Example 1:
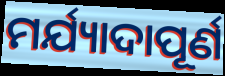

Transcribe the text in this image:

ମର୍ଯ୍ୟାଦାପୂର୍ଣ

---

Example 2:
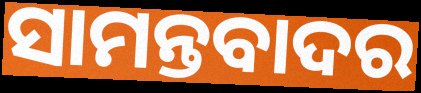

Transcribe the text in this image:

ସାମନ୍ତବାଦର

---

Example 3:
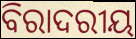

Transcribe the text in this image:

ବିରାଦରୀୟ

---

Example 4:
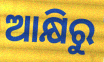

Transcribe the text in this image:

ଆକ୍ଷିରୁ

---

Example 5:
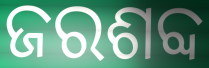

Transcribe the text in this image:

ଜରଶବ୍ଦ